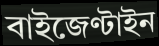
বাইজেণ্টাইন